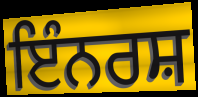
ਇੰਨਰਸ਼